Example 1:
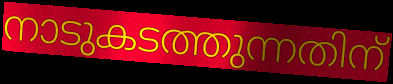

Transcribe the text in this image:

നാടുകടത്തുന്നതിന്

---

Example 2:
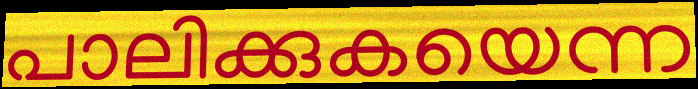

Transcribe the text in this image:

പാലിക്കുകയെന്ന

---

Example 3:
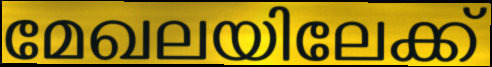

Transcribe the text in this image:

മേഖലയിലേക്ക്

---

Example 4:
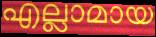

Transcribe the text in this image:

എല്ലാമായ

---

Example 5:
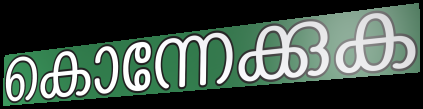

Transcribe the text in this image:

കൊന്നേക്കുക